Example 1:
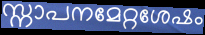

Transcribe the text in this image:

സ്നാപനമേറ്റശേഷം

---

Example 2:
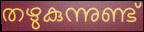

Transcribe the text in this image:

തഴുകുന്നുണ്ട്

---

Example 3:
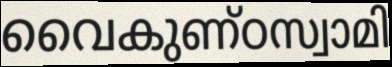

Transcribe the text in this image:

വൈകുണ്ഠസ്വാമി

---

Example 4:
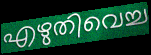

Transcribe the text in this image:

എഴുതിവെച്ച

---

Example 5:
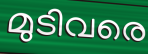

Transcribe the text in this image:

മുടിവരെ